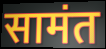
सामंत